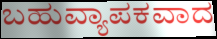
ಬಹುವ್ಯಾಪಕವಾದ